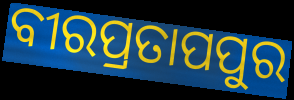
ବୀରପ୍ରତାପପୁର